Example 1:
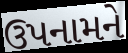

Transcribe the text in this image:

ઉપનામને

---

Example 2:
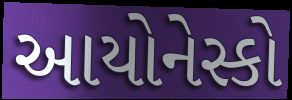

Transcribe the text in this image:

આયોનેસ્કો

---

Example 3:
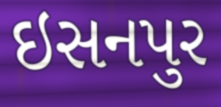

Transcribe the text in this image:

ઇસનપુર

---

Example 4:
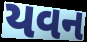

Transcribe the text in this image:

યવન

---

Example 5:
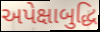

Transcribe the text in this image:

અપેક્ષાબુદ્ધિ